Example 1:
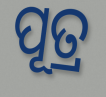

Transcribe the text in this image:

ପୂତ୍ର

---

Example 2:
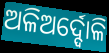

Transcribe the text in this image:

ଅଳିଅର୍ଦ୍ଦୋଳି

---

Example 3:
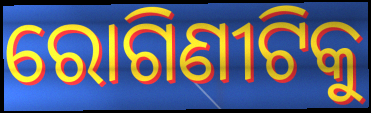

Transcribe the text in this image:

ରୋଗିଣୀଟିକୁ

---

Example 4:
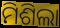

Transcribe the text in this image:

ମିଶିଲା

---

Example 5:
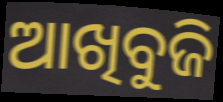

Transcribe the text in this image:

ଆଖିବୁଜି